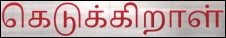
கெடுக்கிறாள்